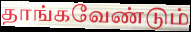
தாங்கவேண்டும்